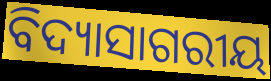
ବିଦ୍ୟାସାଗରୀୟ